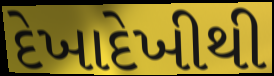
દેખાદેખીથી